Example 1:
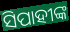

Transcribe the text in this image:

ସିପାହୀଙ୍କ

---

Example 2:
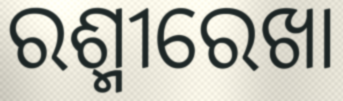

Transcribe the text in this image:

ରଶ୍ମୀରେଖା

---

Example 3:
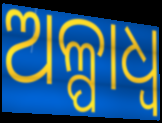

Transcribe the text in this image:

ଅଳ୍ପାଧ୍ଵ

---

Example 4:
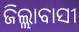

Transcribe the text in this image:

ଜିଲ୍ଲାବାସୀ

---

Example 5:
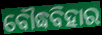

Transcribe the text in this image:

ବୌଦ୍ଧବିହାର